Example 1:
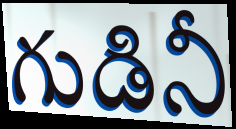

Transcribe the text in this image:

గుడినీ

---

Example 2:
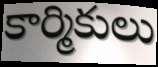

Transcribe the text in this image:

కార్మికులు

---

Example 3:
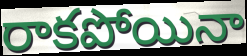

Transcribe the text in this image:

రాకపోయినా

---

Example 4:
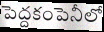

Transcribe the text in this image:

పెద్దకంపెనీలో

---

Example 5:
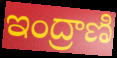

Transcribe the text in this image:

ఇంద్రాణి